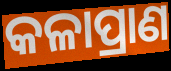
କଳାପ୍ରାଣ